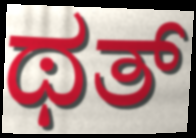
ಥತ್